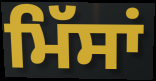
ਮਿੱਸਾਂ